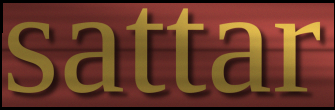
sattar